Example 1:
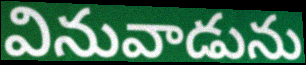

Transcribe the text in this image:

వినువాడును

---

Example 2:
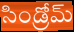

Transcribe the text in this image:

సిండ్రోమ్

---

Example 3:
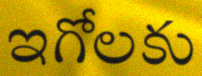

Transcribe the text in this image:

ఇగోలకు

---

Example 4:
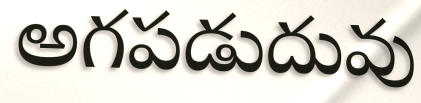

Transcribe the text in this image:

అగపడుదువు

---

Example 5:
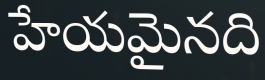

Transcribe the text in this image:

హేయమైనది